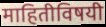
माहितीविषयी